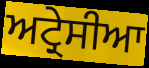
ਅਟ੍ਰੇਸੀਆ